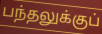
பந்தலுக்குப்